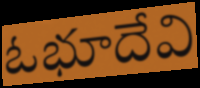
ఓభూదేవి